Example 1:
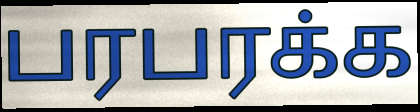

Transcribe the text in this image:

பரபரக்க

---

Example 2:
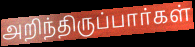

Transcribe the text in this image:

அறிந்திருப்பார்கள்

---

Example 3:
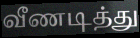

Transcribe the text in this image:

வீணடித்து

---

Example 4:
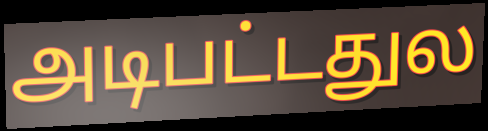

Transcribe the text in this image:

அடிபட்டதுல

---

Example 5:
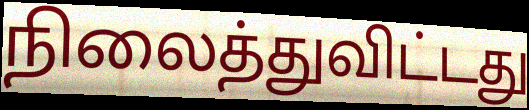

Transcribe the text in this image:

நிலைத்துவிட்டது